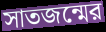
সাতজন্মের